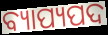
ବ୍ୟାପ୍ୟପଦ